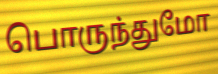
பொருந்துமோ